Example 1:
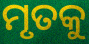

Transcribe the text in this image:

ମୃତକୁ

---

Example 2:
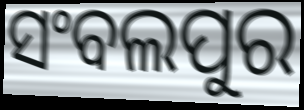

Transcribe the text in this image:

ସଂବଲପୁର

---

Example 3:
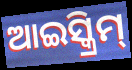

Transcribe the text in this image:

ଆଇସ୍କ୍ରିମ୍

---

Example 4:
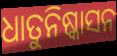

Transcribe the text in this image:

ଧାତୁନିଷ୍କାସନ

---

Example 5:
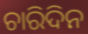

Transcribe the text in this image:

ଚାରିଦିନ